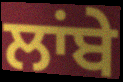
ਲਾਂਬੇ